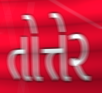
તોત્તેર